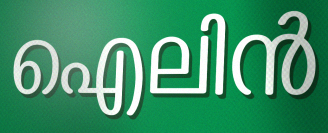
ഐലിൻ